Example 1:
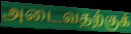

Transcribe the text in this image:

அடைவதற்குக்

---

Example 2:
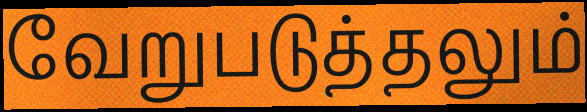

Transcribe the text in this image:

வேறுபடுத்தலும்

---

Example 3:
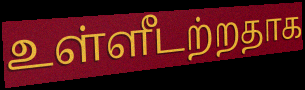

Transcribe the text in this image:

உள்ளீடற்றதாக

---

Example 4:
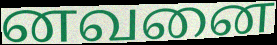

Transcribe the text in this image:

னவனை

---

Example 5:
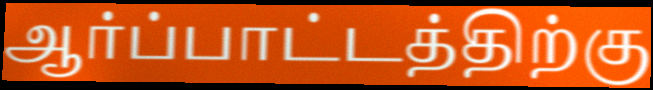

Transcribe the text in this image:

ஆர்ப்பாட்டத்திற்கு